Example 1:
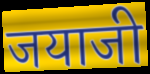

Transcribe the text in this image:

जयाजी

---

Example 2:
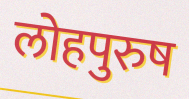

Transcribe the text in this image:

लोहपुरुष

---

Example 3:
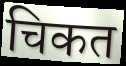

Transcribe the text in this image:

चिकत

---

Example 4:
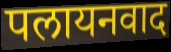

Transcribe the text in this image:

पलायनवाद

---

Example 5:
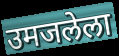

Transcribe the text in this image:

उमजलेला